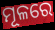
ମୂଳରେ